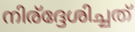
നിര്ദ്ദേശിച്ചത്